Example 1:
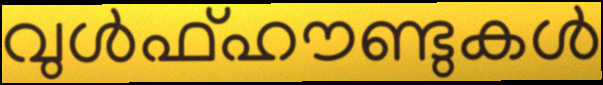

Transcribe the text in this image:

വുൾഫ്ഹൗണ്ടുകൾ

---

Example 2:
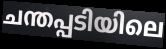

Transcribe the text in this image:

ചന്തപ്പടിയിലെ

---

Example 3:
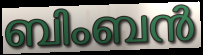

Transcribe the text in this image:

ബിംബൻ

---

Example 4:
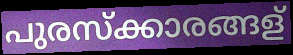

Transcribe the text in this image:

പുരസ്ക്കാരങ്ങള്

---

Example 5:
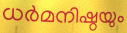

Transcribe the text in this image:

ധർമനിഷ്ഠയും